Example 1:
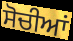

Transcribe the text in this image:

ਸੋਚੀਆਂ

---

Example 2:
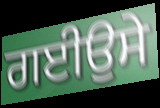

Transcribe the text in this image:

ਗਈਉਸੇ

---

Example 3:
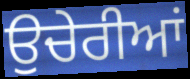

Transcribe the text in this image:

ਉਚੇਰੀਆਂ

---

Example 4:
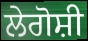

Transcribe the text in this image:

ਲੇਗੋਸ਼ੀ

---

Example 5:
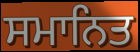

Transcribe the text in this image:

ਸਮਾਨਿਤ